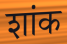
शांक